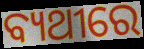
ବ୍ୟଥୀରେ